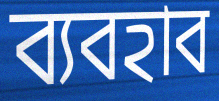
ব্যবহাব